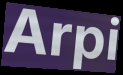
Arpi